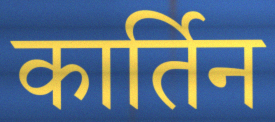
कार्तिन